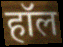
हॉल